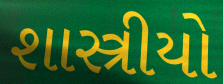
શાસ્ત્રીયો